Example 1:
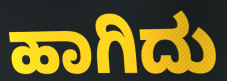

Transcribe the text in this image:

ಹಾಗಿದು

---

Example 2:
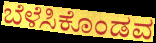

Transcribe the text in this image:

ಬೆಳೆಸಿಕೊಂಡವ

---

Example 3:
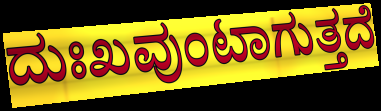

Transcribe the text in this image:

ದುಃಖವುಂಟಾಗುತ್ತದೆ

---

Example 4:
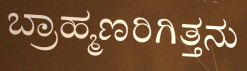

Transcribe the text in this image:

ಬ್ರಾಹ್ಮಣರಿಗಿತ್ತನು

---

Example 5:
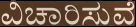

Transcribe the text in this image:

ವಿಚಾರಿಸುವೆ